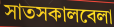
সাতসকালবেলা